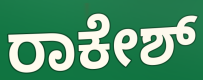
ರಾಕೇಶ್